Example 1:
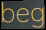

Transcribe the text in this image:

beg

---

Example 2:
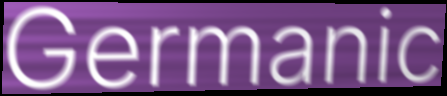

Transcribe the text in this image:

Germanic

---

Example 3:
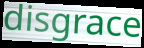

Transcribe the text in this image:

disgrace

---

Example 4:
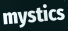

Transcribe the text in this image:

mystics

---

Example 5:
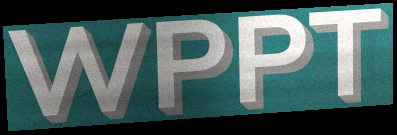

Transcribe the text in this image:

WPPT